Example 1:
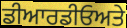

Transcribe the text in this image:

ਡੀਆਰਡੀਓਅਤੇ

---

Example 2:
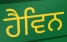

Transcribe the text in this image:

ਹੈਵਿਨ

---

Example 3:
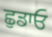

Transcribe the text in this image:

ਛੁਡਾਓ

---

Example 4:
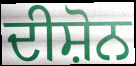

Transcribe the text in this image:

ਦੀਸ਼ੋਨ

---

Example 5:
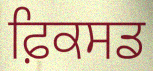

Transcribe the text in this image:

ਫ਼ਿਕਸਡ